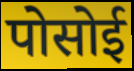
पोसोई